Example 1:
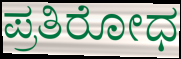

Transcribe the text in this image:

ಪ್ರತಿರೋಧ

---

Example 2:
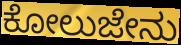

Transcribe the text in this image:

ಕೋಲುಜೇನು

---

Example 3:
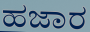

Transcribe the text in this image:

ಹಜಾರ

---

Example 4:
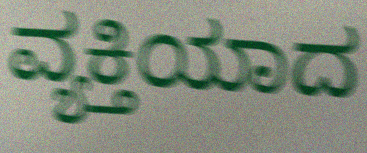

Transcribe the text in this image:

ವ್ಯಕ್ತಿಯಾದ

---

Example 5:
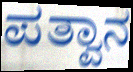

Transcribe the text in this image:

ಪತ್ವಾನ